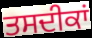
ਤਸਦੀਕਾਂ